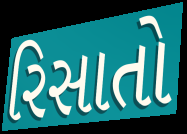
રિસાતો